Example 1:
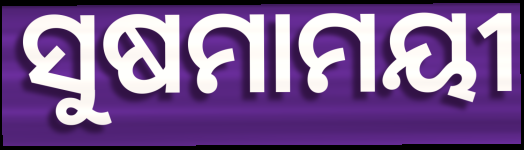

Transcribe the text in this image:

ସୁଷମାମୟୀ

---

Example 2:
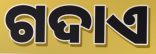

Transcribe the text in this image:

ଗଦାଏ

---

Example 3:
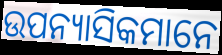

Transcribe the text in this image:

ଉପନ୍ୟାସିକମାନେ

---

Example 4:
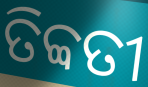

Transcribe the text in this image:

ତିବ୍ବତୀ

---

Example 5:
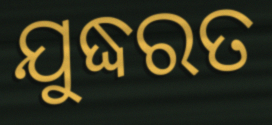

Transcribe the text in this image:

ଯୁଦ୍ଧରତ